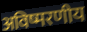
अविष्मरणीय